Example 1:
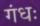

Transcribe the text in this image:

गंधः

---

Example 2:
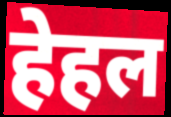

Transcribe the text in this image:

हेहल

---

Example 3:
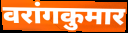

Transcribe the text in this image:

वरांगकुमार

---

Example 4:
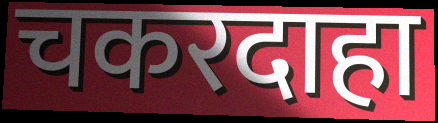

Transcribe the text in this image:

चकरदाहा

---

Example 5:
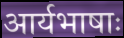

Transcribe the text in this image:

आर्यभाषाः